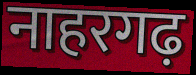
नाहरगढ़